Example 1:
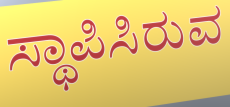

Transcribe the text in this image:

ಸ್ಥಾಪಿಸಿರುವ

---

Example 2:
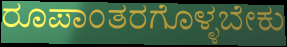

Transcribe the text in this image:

ರೂಪಾಂತರಗೊಳ್ಳಬೇಕು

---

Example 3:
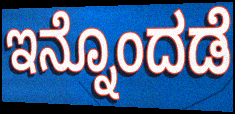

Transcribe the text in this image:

ಇನ್ನೊಂದಡೆ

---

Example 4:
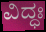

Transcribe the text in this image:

ವಿದ್ಧಃ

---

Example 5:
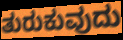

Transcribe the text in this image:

ತುರುಕುವುದು